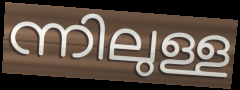
ന്നിലുള്ള